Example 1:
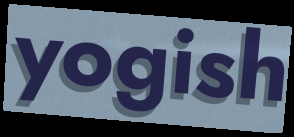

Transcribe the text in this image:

yogish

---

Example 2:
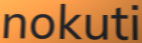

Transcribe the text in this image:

nokuti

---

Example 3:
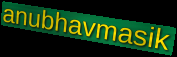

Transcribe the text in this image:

anubhavmasik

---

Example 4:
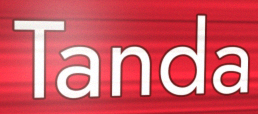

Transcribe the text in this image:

Tanda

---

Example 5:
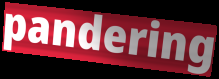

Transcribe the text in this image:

pandering